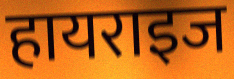
हायराइज